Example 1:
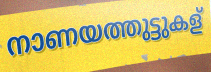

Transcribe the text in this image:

നാണയത്തുട്ടുകള്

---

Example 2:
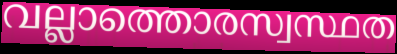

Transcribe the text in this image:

വല്ലാത്തൊരസ്വസ്ഥത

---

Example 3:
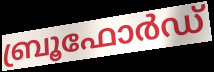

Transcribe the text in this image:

ബ്രൂഫോർഡ്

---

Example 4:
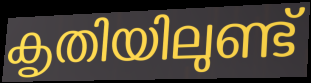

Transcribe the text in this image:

കൃതിയിലുണ്ട്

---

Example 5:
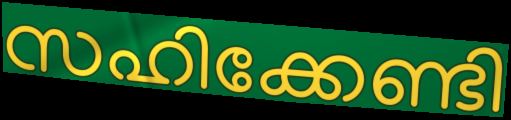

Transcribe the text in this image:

സഹിക്കേണ്ടി